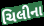
ચિલીના